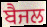
ਬੈਜਲ